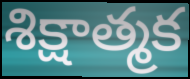
శిక్షాత్మక